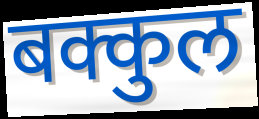
बक्कुल